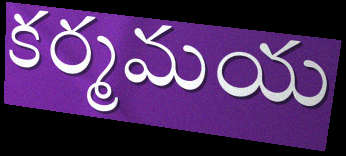
కర్మమయ